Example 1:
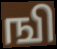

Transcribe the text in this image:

ஙி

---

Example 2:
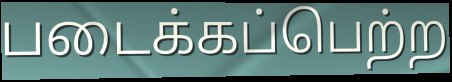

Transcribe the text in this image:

படைக்கப்பெற்ற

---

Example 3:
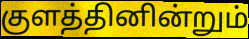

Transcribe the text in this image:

குளத்தினின்றும்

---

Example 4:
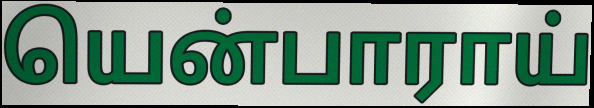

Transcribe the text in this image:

யென்பாராய்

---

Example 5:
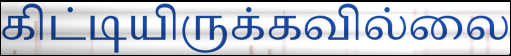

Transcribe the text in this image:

கிட்டியிருக்கவில்லை